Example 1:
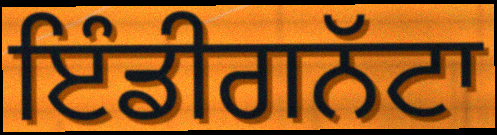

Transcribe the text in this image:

ਇੰਡੀਗਨੱਟਾ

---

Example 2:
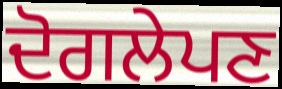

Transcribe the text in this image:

ਦੋਗਲੇਪਣ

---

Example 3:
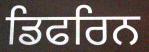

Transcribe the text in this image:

ਡਿਫਰਿਨ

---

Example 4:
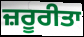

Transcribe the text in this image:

ਜ਼ਰੂਰੀਤਾ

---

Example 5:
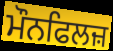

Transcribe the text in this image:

ਮੌਨਫਿਲਜ਼